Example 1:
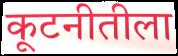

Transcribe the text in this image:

कूटनीतीला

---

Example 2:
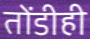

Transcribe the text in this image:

तोंडीही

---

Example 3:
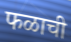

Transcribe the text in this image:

फळाची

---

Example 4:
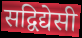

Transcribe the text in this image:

सद्विद्येसी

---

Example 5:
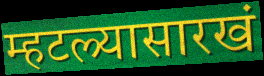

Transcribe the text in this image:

म्हटल्यासारखं